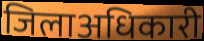
जिलाअधिकारी